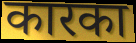
कारका